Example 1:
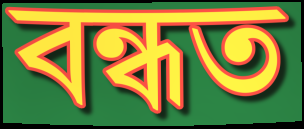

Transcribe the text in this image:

বন্ধত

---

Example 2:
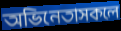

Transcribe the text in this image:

অভিনেতাসকলে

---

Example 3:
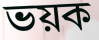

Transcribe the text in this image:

ভয়ক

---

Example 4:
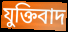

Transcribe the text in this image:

যুক্তিবাদ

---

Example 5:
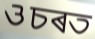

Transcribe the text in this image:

ওচৰত